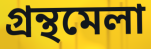
গ্ৰন্থমেলা